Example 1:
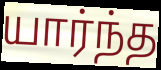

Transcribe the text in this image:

யார்ந்த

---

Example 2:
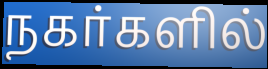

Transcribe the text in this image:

நகர்களில்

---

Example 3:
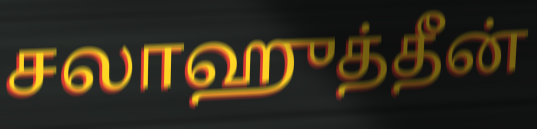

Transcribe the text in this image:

சலாஹுத்தீன்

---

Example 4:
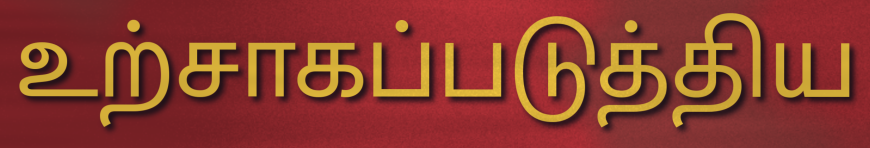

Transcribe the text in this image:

உற்சாகப்படுத்திய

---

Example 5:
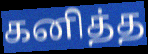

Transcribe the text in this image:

கனித்த